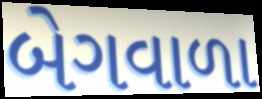
બેગવાળા